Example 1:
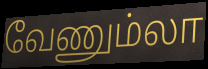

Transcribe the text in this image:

வேணும்லா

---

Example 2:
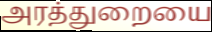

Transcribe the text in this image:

அரத்துறையை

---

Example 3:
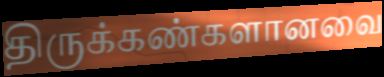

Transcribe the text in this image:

திருக்கண்களானவை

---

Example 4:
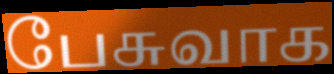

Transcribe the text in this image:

பேசுவாக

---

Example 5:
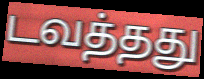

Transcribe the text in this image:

டவத்தது